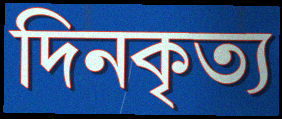
দিনকৃত্য